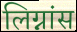
लिग्नांस